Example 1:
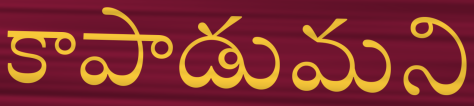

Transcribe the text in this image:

కాపాడుమని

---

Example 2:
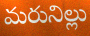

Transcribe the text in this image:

మరునిల్లు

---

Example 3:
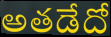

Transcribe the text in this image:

అతడేదో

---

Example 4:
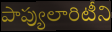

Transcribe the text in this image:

పాప్యులారిటీని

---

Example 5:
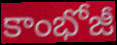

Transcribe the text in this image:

కాంభోజీ